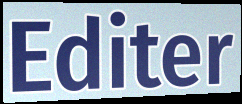
Editer